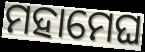
ମହାମେଘ